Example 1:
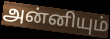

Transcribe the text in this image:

அன்னியும்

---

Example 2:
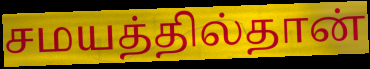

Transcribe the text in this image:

சமயத்தில்தான்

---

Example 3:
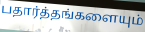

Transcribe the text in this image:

பதார்த்தங்களையும்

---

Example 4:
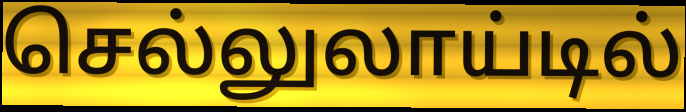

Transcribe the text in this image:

செல்லுலாய்டில்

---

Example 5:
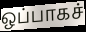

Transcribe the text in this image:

ஒப்பாகச்